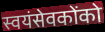
स्वयंसेवकोंको